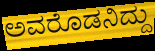
ಅವರೊಡನಿದ್ದು